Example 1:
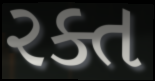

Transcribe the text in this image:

રક્ત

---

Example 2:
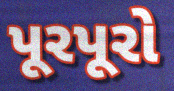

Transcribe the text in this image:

પૂરપૂરો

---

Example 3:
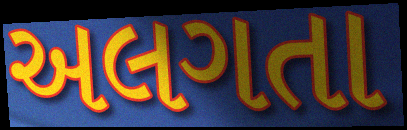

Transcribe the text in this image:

અલગતા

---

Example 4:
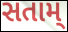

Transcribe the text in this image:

સતામ્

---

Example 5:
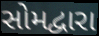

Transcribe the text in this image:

સોમદ્વારા